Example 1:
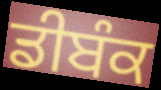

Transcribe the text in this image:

ਡੀਬੰਕ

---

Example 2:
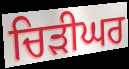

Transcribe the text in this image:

ਚਿੜੀਘਰ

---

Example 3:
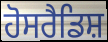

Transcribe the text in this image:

ਹੋਸਰੈਡਿਸ਼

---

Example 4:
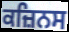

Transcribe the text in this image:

ਕਜ਼ਿਨਸ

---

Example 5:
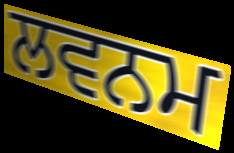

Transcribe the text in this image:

ਲਵਨਮ